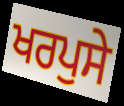
ਖਰਪੁਸੇ